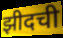
झीदची